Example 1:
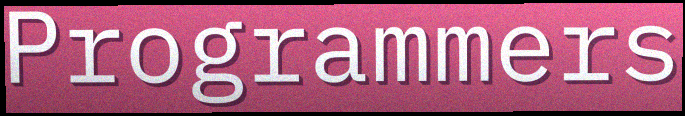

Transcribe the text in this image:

Programmers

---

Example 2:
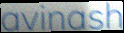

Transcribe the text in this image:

avinash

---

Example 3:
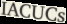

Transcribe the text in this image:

IACUCs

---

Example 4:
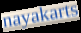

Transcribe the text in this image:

nayakarts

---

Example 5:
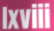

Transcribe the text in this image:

Ixviii